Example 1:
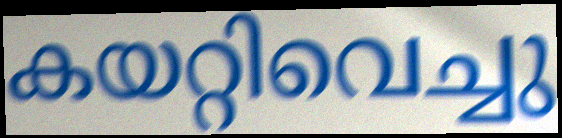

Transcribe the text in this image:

കയറ്റിവെച്ചു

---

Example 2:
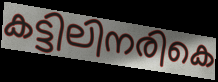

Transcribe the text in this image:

കട്ടിലിനരികെ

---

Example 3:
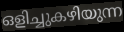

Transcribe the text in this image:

ഒളിച്ചുകഴിയുന്ന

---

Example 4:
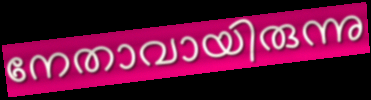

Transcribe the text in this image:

നേതാവായിരുന്നു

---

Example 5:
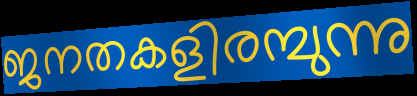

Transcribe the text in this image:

ജനതകളിരമ്പുന്നു